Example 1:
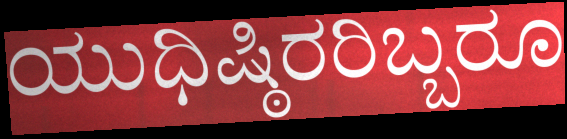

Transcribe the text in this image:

ಯುಧಿಷ್ಠಿರರಿಬ್ಬರೂ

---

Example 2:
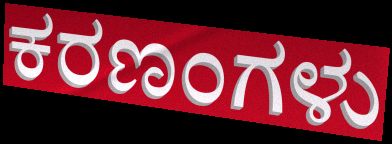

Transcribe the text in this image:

ಕರಣಂಗಳು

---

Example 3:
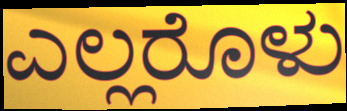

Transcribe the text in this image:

ಎಲ್ಲರೊಳು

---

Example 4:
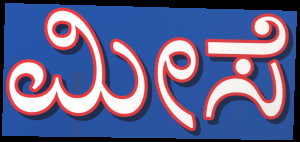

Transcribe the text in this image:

ಮೀಸೆ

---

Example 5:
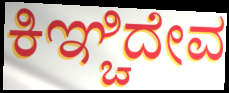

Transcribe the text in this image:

ಕಿಞ್ಚಿದೇವ